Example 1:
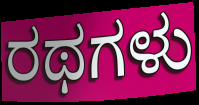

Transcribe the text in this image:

ರಥಗಳು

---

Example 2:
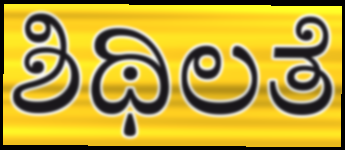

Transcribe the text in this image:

ಶಿಥಿಲತೆ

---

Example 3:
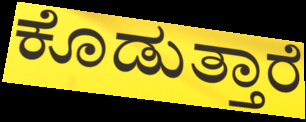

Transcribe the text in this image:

ಕೊಡುತ್ತಾರೆ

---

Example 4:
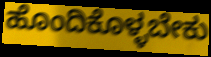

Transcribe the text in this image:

ಹೊಂದಿಕೊಳ್ಳಬೇಕು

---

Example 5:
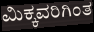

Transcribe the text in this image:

ಮಿಕ್ಕವರಿಗಿಂತ